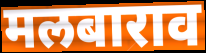
मलबाराव